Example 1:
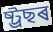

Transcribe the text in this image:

ষ্ট্ৰছৰ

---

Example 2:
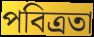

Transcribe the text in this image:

পবিত্ৰতা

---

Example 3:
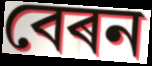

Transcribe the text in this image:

বেৰন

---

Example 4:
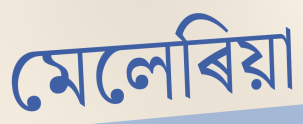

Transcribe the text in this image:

মেলেৰিয়া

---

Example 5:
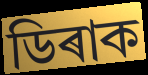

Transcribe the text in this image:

ডিৰাক